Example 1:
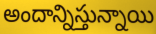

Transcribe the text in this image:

అందాన్నిస్తున్నాయి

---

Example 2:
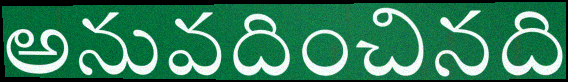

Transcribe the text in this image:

అనువదించినది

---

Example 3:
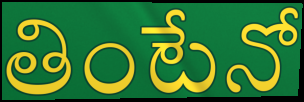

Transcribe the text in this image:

తింటేనో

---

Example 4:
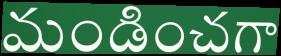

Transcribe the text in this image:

మండించగా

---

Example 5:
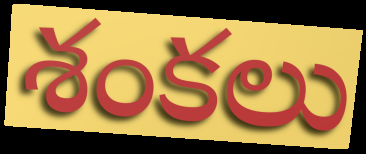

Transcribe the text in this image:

శంకలు